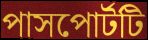
পাসপোর্টটি